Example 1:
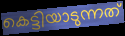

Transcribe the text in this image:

കെട്ടിയാടുന്നത്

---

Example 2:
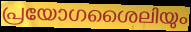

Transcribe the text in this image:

പ്രയോഗശൈലിയും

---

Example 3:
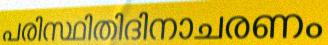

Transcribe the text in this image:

പരിസ്ഥിതിദിനാചരണം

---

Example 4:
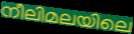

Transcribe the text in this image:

നീലിമലയിലെ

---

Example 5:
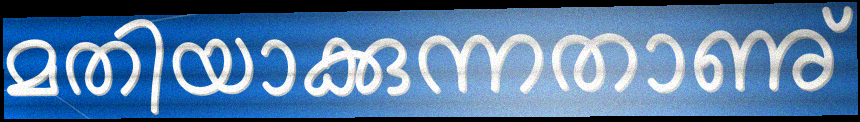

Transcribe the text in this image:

മതിയാക്കുന്നതാണു്